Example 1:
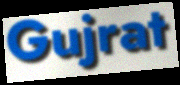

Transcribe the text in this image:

Gujrat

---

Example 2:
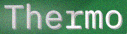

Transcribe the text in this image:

Thermo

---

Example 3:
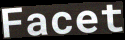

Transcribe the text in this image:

Facet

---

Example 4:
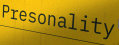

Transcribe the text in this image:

Presonality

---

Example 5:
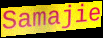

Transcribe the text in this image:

Samajie